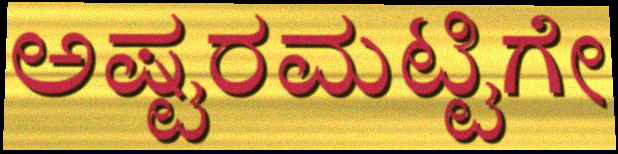
ಅಷ್ಟರಮಟ್ಟಿಗೇ